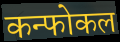
कन्फोकल